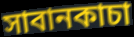
সাবানকাচা